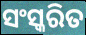
ସଂସ୍କରିତ